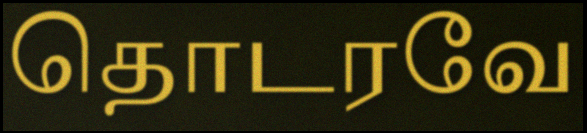
தொடரவே